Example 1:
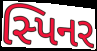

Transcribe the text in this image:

સ્પિનર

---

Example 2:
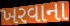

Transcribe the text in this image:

ખરવાના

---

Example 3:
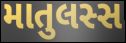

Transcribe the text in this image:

માતુલસ્સ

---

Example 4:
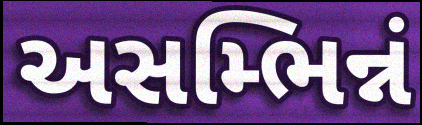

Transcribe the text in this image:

અસમ્ભિન્નં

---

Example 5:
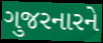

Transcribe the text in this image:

ગુજરનારને